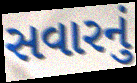
સવારનું